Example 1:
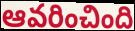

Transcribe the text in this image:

ఆవరించింది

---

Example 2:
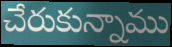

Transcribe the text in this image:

చేరుకున్నాము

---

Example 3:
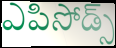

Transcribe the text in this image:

ఎపిసోడ్స్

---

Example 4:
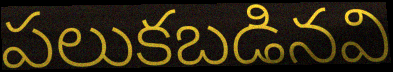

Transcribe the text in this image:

పలుకబడినవి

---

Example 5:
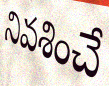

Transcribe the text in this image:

నివశించే